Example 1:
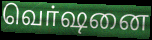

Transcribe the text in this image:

வெர்ஷனை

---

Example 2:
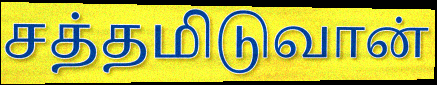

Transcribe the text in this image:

சத்தமிடுவான்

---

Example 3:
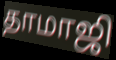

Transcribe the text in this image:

தாமாஜி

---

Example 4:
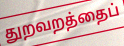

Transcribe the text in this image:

துறவறத்தைப்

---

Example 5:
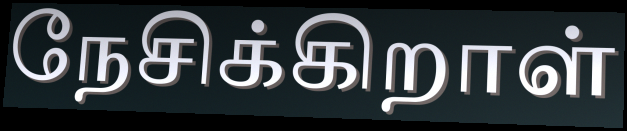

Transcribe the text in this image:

நேசிக்கிறாள்